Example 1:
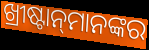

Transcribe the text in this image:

ଖ୍ରୀଷ୍ଟାନ୍‌ମାନଙ୍କର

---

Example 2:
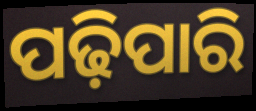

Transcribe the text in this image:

ପଢ଼ିପାରି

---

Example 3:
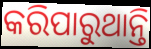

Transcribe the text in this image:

କରିପାରୁଥାନ୍ତି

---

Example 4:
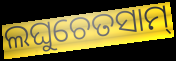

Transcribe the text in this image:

ଲଘୁଚେତସାମ୍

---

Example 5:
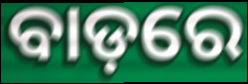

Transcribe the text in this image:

ବାଡ଼ରେ